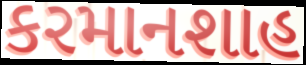
કરમાનશાહ